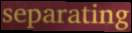
separating